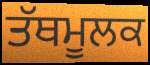
ਤੱਥਮੂਲਕ